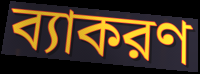
ব্যাকরণ